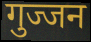
गुज्जन